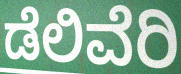
ಡೆಲಿವೆರಿ